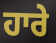
ਹਾਰੇ